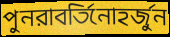
পুনরাবর্তিনোহর্জুন